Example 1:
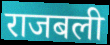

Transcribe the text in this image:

राजबली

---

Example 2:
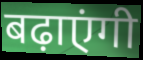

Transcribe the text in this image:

बढ़ाएंगी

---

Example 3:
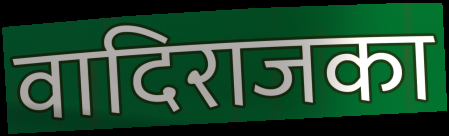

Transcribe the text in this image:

वादिराजका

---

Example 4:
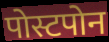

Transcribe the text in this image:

पोस्टपोन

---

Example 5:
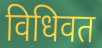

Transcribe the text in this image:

विधिवत